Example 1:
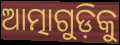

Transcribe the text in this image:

ଆତ୍ମାଗୁଡ଼ିକୁ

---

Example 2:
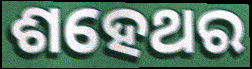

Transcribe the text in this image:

ଶହେଥର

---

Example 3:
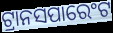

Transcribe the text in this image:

ଟ୍ରାନସପାରେଂଟ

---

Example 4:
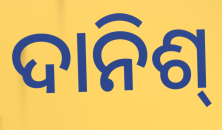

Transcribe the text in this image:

ଦାନିଶ୍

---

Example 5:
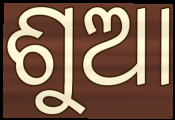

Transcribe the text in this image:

ଶୁଆ